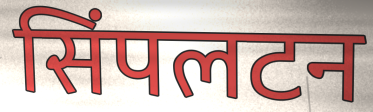
सिंपलटन